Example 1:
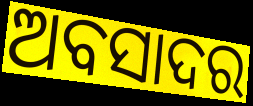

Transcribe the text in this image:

ଅବସାଦର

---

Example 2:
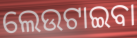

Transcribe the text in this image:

ଲେଉଟାଇବା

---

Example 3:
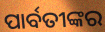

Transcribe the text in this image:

ପାର୍ବତୀଙ୍କର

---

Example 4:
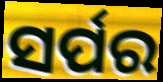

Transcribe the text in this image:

ସର୍ପର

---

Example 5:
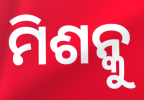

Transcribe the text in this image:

ମିଶନ୍କୁ